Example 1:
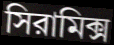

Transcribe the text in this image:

সিরামিক্স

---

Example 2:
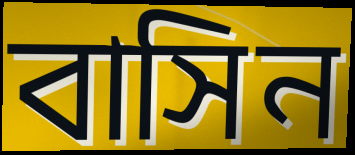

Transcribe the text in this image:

বাসিন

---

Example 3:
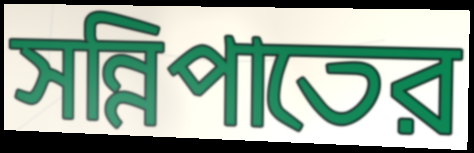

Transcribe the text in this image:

সন্নিপাতের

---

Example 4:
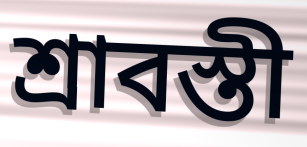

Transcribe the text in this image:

শ্রাবস্তী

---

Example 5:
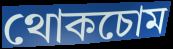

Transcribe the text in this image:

থোকচোম